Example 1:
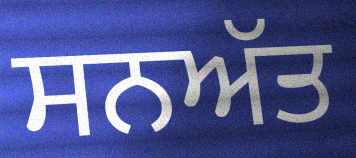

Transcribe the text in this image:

ਸਨਅੱਤ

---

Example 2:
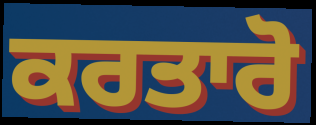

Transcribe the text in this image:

ਕਰਤਾਰੋ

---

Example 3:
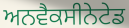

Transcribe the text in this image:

ਅਨਵੈਕਸੀਨੇਟੇਡ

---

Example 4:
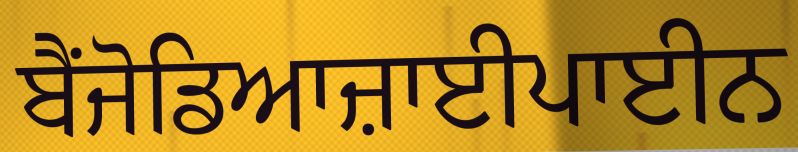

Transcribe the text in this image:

ਬੈਂਜੋਡਿਆਜ਼ਾਈਪਾਈਨ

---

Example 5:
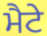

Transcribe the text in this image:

ਮੈਟੇ